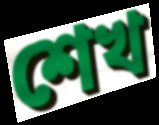
শেখ